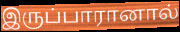
இருப்பாரானால்